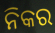
ନିକର